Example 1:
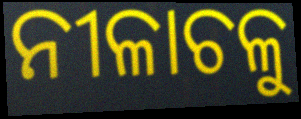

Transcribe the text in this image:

ନୀଳାଚଳୁ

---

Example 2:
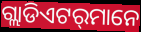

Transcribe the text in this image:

ଗ୍ଲାଡିଏଟର୍‍ମାନେ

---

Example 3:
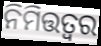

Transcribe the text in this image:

ନିମିତ୍ତତ୍ଵର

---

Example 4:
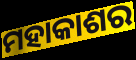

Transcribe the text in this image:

ମହାକାଶର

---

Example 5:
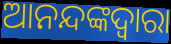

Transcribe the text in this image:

ଆନନ୍ଦଙ୍କଦ୍ୱାରା